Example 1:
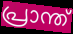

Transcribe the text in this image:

പ്രാന്ത്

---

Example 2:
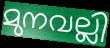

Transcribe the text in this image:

മുനവല്ലി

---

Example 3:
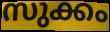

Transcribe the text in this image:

സുക്കം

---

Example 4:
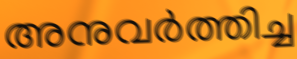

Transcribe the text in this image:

അനുവർത്തിച്ച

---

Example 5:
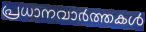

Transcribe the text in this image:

പ്രധാനവാർത്തകൾ